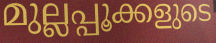
മുല്ലപ്പൂക്കളുടെ